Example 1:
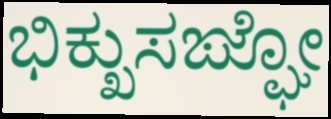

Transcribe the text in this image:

ಭಿಕ್ಖುಸಙ್ಘೋ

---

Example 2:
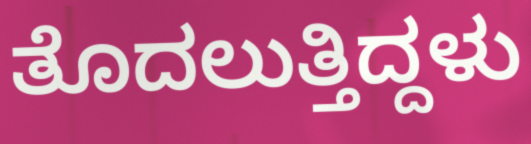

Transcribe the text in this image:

ತೊದಲುತ್ತಿದ್ದಳು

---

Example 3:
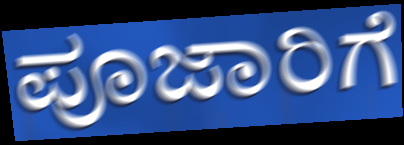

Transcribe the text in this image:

ಪೂಜಾರಿಗೆ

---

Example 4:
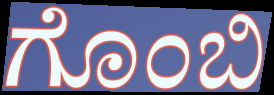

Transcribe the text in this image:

ಗೊಂಬಿ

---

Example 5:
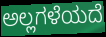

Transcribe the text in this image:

ಅಲ್ಲಗಳೆಯದೆ